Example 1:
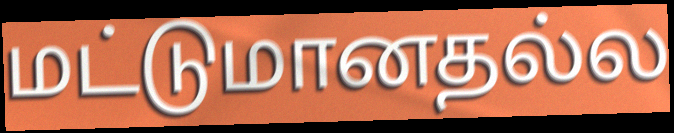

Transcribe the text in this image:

மட்டுமானதல்ல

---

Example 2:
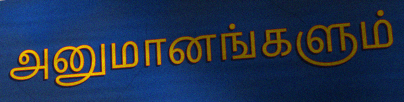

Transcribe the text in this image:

அனுமானங்களும்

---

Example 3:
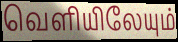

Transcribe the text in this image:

வெளியிலேயும்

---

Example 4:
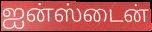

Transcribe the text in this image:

ஐன்ஸ்டைன்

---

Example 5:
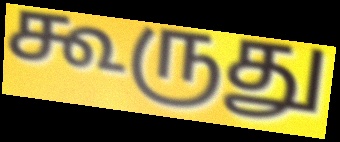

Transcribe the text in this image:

கூருது